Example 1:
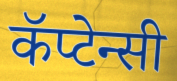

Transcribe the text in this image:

कॅप्टेन्सी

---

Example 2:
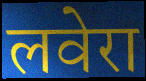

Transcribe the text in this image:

लवेरा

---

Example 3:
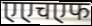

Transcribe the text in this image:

एएचएफ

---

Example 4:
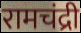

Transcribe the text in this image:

रामचंद्री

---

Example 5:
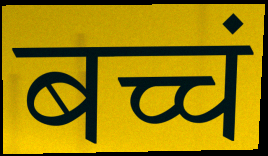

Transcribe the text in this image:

बच्चं